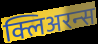
क्लिअरन्स